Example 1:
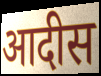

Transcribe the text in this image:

आदीस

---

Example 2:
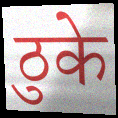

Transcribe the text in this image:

ठुके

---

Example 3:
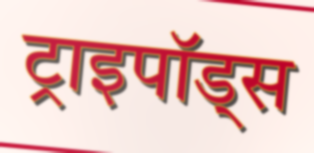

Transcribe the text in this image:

ट्राइपॉड्स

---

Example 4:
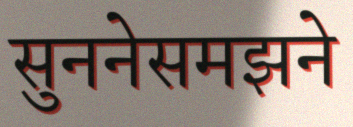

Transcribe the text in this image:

सुननेसमझने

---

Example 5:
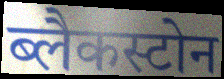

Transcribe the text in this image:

ब्लैकस्टोन